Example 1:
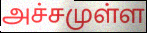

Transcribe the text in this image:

அச்சமுள்ள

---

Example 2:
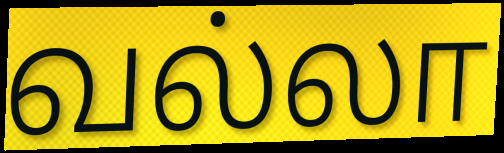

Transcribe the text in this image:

வல்லா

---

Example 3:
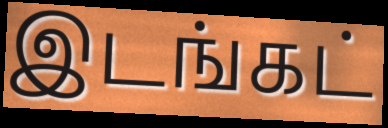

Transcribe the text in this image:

இடங்கட்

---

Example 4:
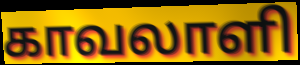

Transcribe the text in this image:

காவலாளி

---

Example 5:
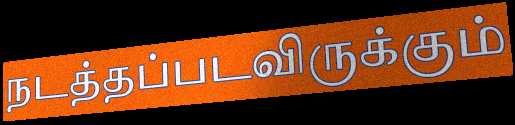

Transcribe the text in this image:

நடத்தப்படவிருக்கும்